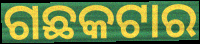
ଗଛକଟାର